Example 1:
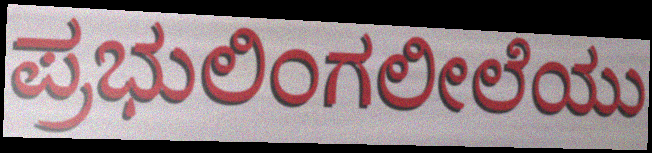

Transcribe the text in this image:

ಪ್ರಭುಲಿಂಗಲೀಲೆಯು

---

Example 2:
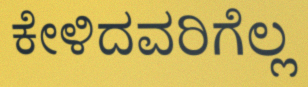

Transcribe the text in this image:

ಕೇಳಿದವರಿಗೆಲ್ಲ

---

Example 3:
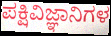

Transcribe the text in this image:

ಪಕ್ಷಿವಿಜ್ಞಾನಿಗಳ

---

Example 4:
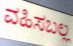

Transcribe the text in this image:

ವಹಿಸಬಲ್ಲ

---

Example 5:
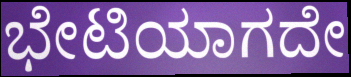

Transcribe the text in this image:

ಭೇಟಿಯಾಗದೇ